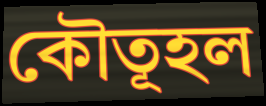
কৌতূহল